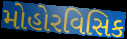
મોહોરવિસિક